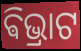
ଵିଭ୍ରାଟ